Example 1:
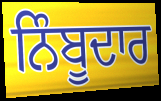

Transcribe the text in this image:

ਨਿੰਬੂਦਾਰ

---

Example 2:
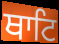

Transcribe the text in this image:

ਥਾਟਿ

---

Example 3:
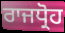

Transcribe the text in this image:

ਰਾਜਧ੍ਰੋਹ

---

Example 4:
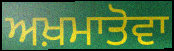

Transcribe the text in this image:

ਅਖ਼ਮਾਤੋਵਾ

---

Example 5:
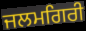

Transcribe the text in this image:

ਜਲਮਗਿਰੀ